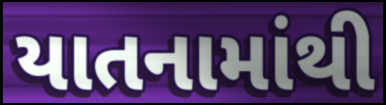
યાતનામાંથી